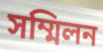
সম্মিলন